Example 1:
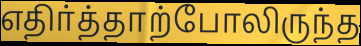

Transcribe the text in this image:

எதிர்த்தாற்போலிருந்த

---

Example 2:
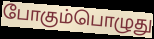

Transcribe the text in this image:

போகும்பொழுது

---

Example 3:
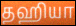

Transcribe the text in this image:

தஹியா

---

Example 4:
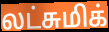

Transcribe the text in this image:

லட்சுமிக்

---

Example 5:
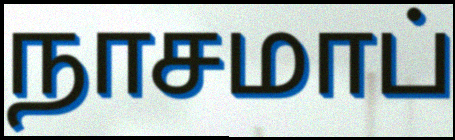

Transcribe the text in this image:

நாசமாப்